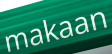
makaan